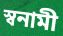
স্বনামী